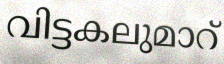
വിട്ടകലുമാറ്